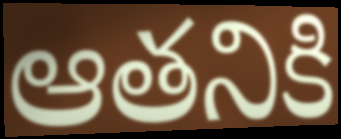
ఆతనికి